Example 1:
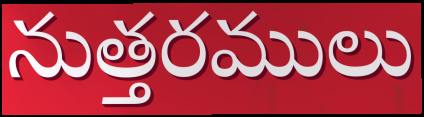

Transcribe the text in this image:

నుత్తరములు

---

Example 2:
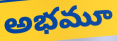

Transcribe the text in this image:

అభమూ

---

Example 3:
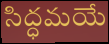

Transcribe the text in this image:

సిద్ధమయే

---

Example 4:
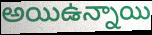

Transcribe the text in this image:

అయిఉన్నాయి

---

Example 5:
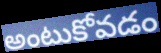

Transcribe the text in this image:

అంటుకోవడం